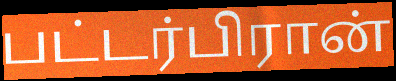
பட்டர்பிரான்